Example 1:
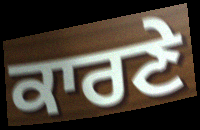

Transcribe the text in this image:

ਕਾਰਣੇ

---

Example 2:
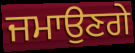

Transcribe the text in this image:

ਜਮਾਉਣਗੇ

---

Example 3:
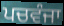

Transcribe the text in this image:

ਪਚਵੰਜਾ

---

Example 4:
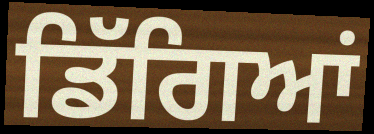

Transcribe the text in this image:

ਡਿੱਗਿਆਂ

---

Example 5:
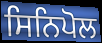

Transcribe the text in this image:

ਸਿਨਿਪੋਲ